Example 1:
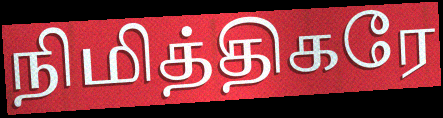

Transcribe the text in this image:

நிமித்திகரே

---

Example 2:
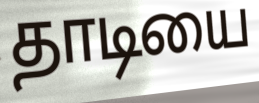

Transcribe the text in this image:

தாடியை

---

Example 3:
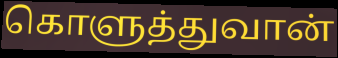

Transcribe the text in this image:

கொளுத்துவான்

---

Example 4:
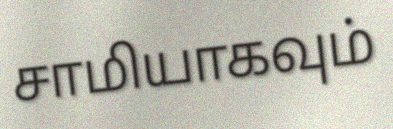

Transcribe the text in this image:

சாமியாகவும்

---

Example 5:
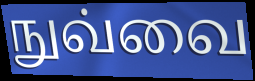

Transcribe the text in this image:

நுவ்வை